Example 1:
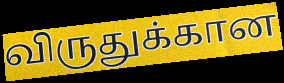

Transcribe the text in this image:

விருதுக்கான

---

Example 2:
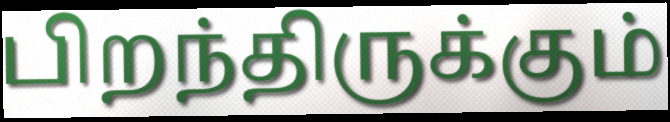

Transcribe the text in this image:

பிறந்திருக்கும்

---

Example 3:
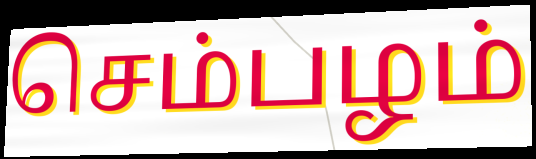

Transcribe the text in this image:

செம்பழம்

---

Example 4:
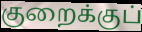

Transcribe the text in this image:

குறைக்குப்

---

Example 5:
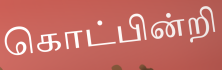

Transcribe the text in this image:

கொட்பின்றி